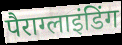
पैराग्लाइंडिंग